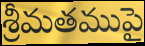
శ్రీమతముపై